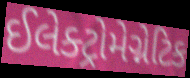
ઈલેક્ટ્રોમેગ્નેટિક